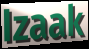
Izaak